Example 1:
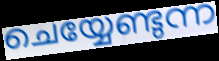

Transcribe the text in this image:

ചെയ്യേണ്ടുന്ന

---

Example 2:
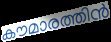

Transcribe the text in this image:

കൗമാരത്തിൻ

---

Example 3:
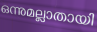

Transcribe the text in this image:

ഒന്നുമല്ലാതായി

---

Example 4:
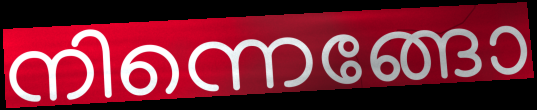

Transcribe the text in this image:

നിന്നെങ്ങോ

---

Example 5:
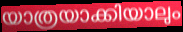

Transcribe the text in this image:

യാത്രയാക്കിയാലും